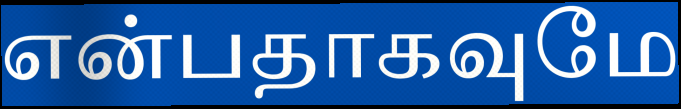
என்பதாகவுமே